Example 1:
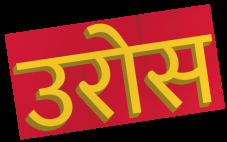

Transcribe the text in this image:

उरोस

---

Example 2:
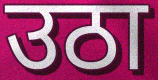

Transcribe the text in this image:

उठा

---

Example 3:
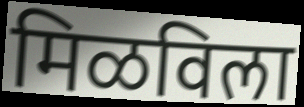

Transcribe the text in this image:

मिळविला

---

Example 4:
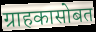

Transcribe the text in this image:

ग्राहकासोबत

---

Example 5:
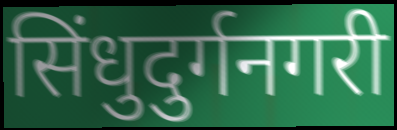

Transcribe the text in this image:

सिंधुदुर्गनगरी